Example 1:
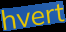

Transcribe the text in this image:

hvert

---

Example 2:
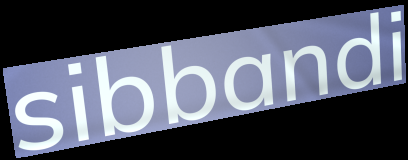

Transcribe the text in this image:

sibbandi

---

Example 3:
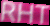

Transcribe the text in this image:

RHT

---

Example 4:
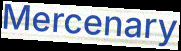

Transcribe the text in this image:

Mercenary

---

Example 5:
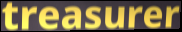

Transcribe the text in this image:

treasurer